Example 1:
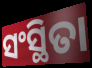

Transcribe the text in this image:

ସଂସ୍ଥିତା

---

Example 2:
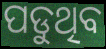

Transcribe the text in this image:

ପଡୁଥିବ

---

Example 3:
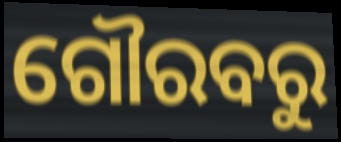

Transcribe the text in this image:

ଗୌରବରୁ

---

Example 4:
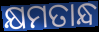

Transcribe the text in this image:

କ୍ଷମତାନ୍ଧ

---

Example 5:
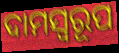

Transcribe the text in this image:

ଦାମସ୍ୱରୂପ